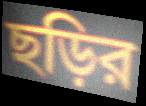
ছড়ির